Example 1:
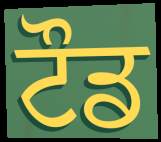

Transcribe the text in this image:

ਟੌਡ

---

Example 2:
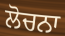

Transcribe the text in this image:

ਲੋਚਨਾ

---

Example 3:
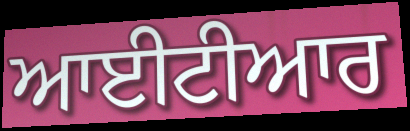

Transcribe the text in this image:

ਆਈਟੀਆਰ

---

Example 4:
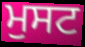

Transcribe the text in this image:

ਮੁਸਟ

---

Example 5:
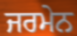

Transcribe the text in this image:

ਜਰਮੇਨ